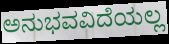
ಅನುಭವವಿದೆಯಲ್ಲ